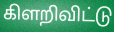
கிளறிவிட்டு